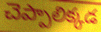
చెప్పాలిక్కడ